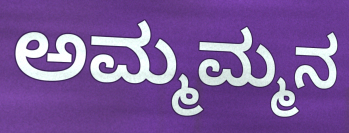
ಅಮ್ಮಮ್ಮನ